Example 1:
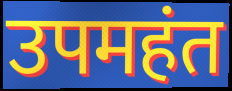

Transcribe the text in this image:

उपमहंत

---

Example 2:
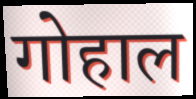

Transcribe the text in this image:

गोहाल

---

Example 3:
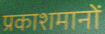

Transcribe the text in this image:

प्रकाशमानों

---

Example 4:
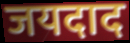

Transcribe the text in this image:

जयदाद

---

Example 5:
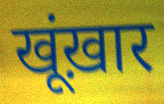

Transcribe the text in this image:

खूंख़ार